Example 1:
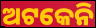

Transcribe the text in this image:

ଅଟକେନି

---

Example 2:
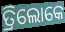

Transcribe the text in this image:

ତ୍ରିଲୋକେ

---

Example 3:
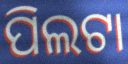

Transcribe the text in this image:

ପିଲଟା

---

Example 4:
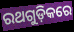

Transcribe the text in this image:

ରଥଗୁଡ଼ିକରେ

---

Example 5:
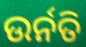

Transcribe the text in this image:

ଉର୍ନତି